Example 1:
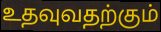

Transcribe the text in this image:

உதவுவதற்கும்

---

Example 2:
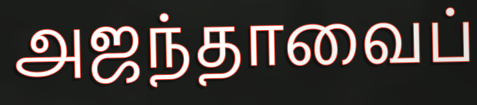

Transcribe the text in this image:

அஜந்தாவைப்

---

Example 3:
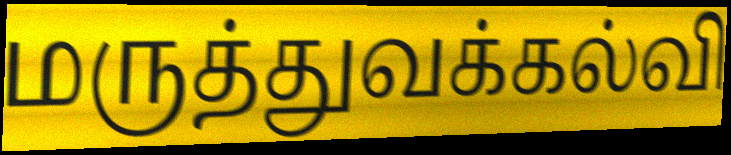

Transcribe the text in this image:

மருத்துவக்கல்வி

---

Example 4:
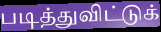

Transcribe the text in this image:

படித்துவிட்டுக்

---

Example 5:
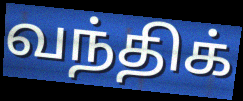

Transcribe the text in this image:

வந்திக்